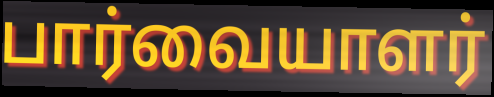
பார்வையாளர்